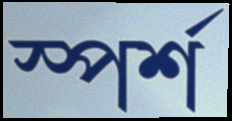
স্পৰ্শ